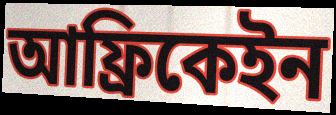
আফ্রিকেইন